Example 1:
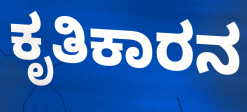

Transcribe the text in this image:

ಕೃತಿಕಾರನ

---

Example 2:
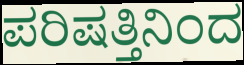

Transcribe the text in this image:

ಪರಿಷತ್ತಿನಿಂದ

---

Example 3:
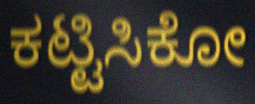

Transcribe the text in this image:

ಕಟ್ಟಿಸಿಕೋ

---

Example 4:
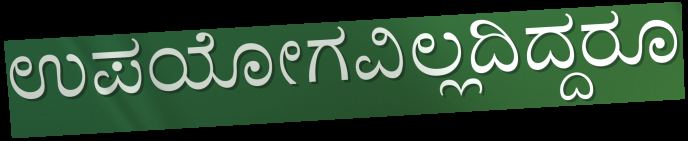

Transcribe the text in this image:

ಉಪಯೋಗವಿಲ್ಲದಿದ್ದರೂ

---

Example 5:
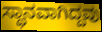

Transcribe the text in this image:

ಸ್ಥಾನವಾಗಿದ್ದವು